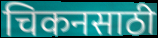
चिकनसाठी